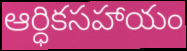
ఆర్ధికసహాయం